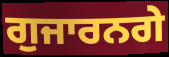
ਗੁਜਾਰਨਗੇ